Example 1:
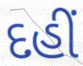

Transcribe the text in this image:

દહીં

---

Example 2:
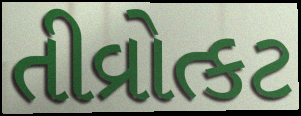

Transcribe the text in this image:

તીવ્રોત્કટ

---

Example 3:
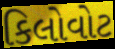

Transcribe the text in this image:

કિલોવોટ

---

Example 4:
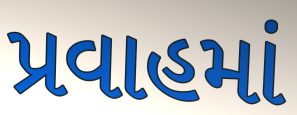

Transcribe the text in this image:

પ્રવાહમાં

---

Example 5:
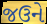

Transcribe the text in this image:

જઉને